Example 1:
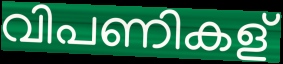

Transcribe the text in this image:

വിപണികള്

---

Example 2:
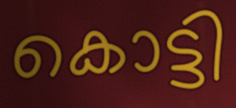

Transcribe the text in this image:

കൊട്ടി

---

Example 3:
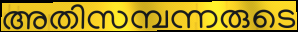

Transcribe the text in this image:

അതിസമ്പന്നരുടെ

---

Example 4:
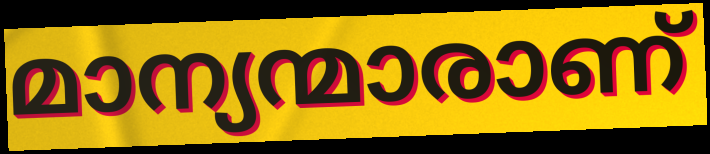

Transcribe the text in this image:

മാന്യന്മാരാണ്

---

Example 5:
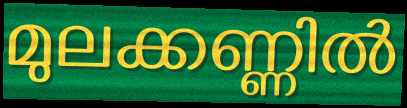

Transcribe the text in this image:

മുലക്കണ്ണിൽ